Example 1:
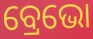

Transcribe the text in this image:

ବ୍ରେଭୋ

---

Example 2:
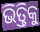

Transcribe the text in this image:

ଭିତ୍ତିକୁ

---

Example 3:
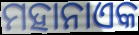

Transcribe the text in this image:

ମହାନାଏକ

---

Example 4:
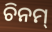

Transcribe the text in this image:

ଚିନମ୍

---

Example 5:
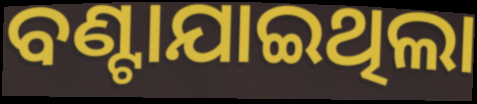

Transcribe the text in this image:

ବଣ୍ଟାଯାଇଥିଲା